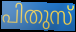
പിതുസ്